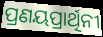
ପ୍ରଣୟପ୍ରାର୍ଥିନୀ